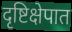
दृष्टिक्षेपात